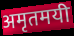
अमृतमयी